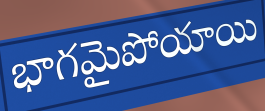
భాగమైపోయాయి